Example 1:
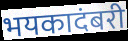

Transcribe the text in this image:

भयकादंबरी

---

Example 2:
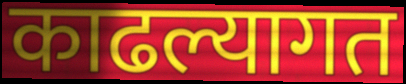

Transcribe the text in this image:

काढल्यागत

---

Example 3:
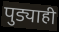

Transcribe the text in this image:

पुड्याही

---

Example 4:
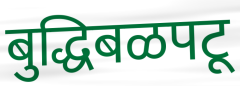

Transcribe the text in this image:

बुद्धिबळपटू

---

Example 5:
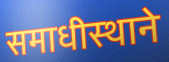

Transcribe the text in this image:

समाधीस्थाने